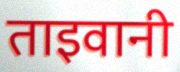
ताइवानी